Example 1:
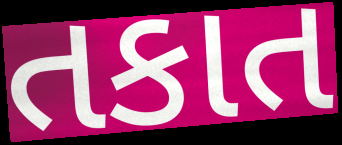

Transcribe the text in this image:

તકાત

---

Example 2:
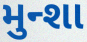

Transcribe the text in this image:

મુન્શા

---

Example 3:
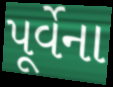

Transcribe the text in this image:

પૂર્વેના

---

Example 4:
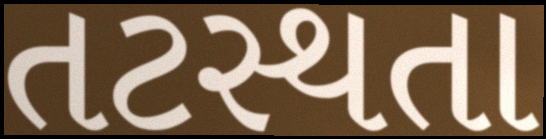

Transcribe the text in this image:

તટસ્થતા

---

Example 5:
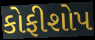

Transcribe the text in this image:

કોફીશોપ